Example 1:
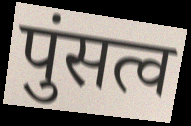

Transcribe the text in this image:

पुंसत्व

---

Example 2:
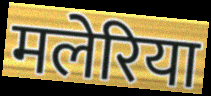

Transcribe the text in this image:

मलेरिया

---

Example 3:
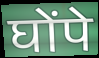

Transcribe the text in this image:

घोंपे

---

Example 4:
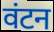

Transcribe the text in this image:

वंटन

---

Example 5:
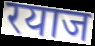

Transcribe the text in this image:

रयाज